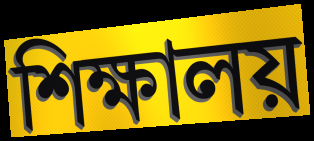
শিক্ষালয়